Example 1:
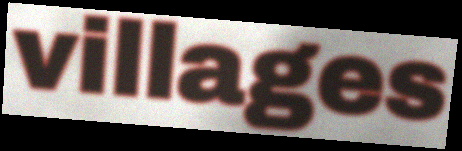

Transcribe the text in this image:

villages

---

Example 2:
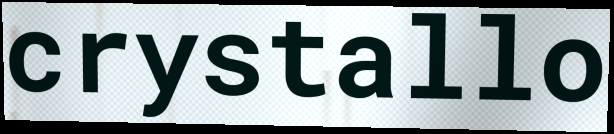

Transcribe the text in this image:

crystallo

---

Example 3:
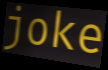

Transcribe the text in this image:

joke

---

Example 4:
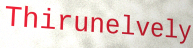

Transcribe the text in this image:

Thirunelvely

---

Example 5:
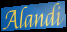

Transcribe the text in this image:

Alandi